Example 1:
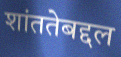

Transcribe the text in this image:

शांततेबद्दल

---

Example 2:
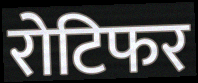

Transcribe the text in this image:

रोटिफर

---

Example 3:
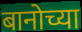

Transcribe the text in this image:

बानोच्या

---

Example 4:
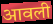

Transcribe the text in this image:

आवली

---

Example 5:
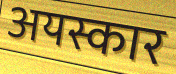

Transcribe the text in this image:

अयस्कार